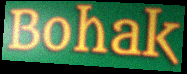
Bohak